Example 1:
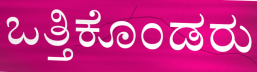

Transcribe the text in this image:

ಒತ್ತಿಕೊಂಡರು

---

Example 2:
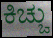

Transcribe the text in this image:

ಕಿಚ್ಚು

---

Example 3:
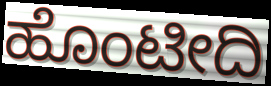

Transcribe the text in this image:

ಹೊಂಟೀದಿ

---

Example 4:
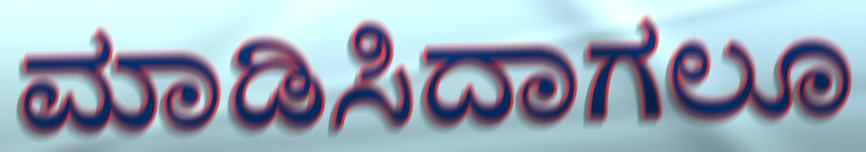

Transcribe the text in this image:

ಮಾಡಿಸಿದಾಗಲೂ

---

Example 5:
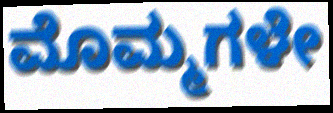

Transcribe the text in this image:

ಮೊಮ್ಮಗಳೇ